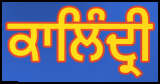
ਕਾਲਿੰਦ੍ਰੀ